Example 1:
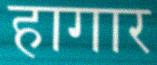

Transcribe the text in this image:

हागार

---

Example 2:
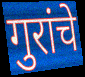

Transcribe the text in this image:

गुरांचे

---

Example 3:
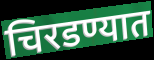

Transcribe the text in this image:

चिरडण्यात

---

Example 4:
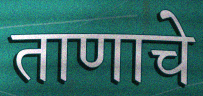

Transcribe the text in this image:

ताणाचे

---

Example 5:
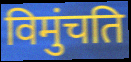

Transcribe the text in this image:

विमुंचति